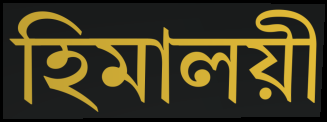
হিমালয়ী